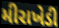
મીરાખેડી